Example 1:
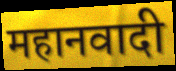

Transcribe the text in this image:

महानवादी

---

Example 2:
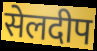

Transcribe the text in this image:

सेलदीप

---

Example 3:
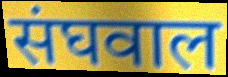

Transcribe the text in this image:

संघवाल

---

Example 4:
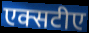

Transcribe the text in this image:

एक्सटीए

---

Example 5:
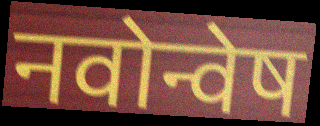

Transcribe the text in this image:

नवोन्वेष